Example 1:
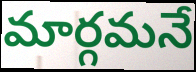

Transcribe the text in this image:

మార్గమనే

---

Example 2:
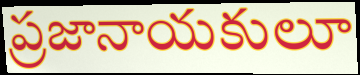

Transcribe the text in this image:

ప్రజానాయకులూ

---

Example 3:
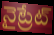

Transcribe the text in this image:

నైట్రేట్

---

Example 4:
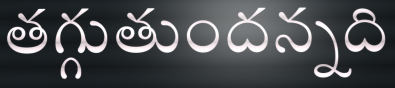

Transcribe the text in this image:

తగ్గుతుందన్నది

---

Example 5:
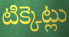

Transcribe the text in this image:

టిక్కెట్లు